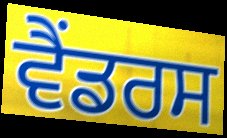
ਵੈਂਡਰਸ